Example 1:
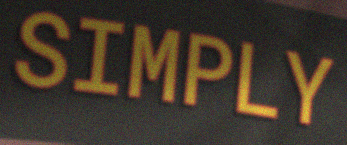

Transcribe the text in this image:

SIMPLY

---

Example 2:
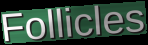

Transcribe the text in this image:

Follicles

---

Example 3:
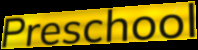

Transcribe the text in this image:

Preschool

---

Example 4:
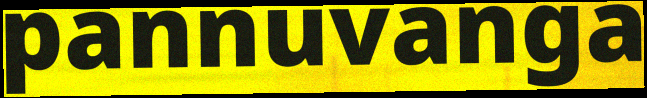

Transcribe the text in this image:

pannuvanga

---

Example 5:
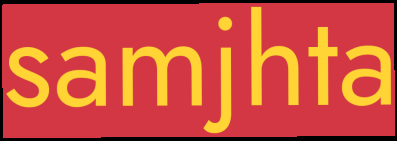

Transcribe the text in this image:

samjhta